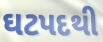
ઘટપદથી